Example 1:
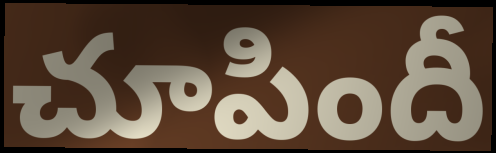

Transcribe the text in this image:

చూపిందీ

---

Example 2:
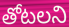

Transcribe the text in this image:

తోటలని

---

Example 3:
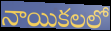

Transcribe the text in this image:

నాయికలలో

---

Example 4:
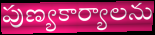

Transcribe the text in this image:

పుణ్యకార్యాలను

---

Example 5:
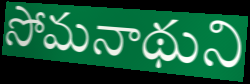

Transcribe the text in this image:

సోమనాథుని